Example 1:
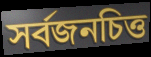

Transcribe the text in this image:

সর্বজনচিত্ত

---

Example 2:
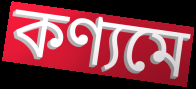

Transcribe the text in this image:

কণ্যমে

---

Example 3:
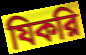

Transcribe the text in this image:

যিকরি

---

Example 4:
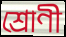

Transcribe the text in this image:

শ্রোণী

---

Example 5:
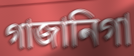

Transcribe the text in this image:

গাজানিগা